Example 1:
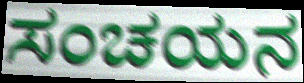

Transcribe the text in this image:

ಸಂಚಯನ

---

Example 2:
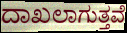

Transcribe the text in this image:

ದಾಖಲಾಗುತ್ತವೆ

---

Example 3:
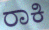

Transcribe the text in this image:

ರಾಕಿ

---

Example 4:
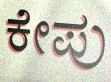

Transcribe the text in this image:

ಕೇಪು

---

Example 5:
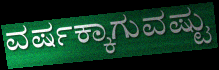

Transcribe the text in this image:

ವರ್ಷಕ್ಕಾಗುವಷ್ಟು